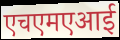
एचएमएआई